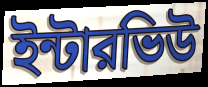
ইন্টারভিউ